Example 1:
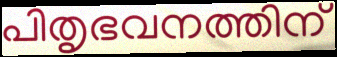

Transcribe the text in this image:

പിതൃഭവനത്തിന്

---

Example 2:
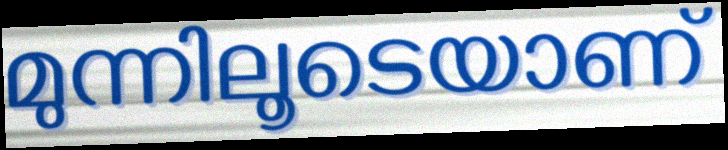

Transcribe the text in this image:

മുന്നിലൂടെയാണ്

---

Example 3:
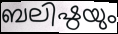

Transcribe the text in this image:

ബലിഷ്ഠയും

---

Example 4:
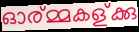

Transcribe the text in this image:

ഓര്മ്മകള്ക്കു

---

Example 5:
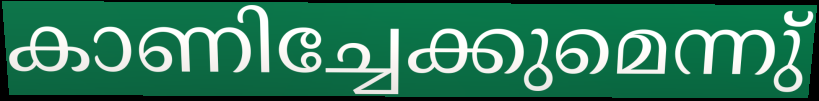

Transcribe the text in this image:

കാണിച്ചേക്കുമെന്നു്